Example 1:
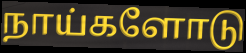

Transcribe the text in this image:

நாய்களோடு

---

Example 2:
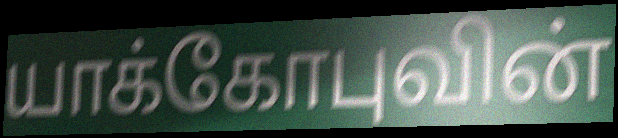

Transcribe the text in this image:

யாக்கோபுவின்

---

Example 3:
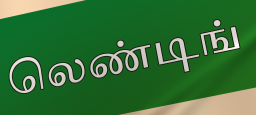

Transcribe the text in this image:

லெண்டிங்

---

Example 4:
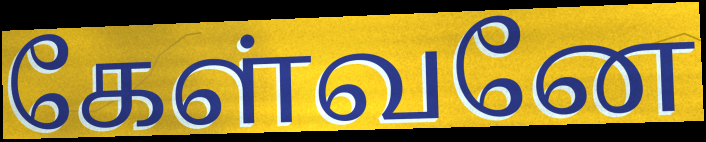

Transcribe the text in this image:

கேள்வனே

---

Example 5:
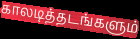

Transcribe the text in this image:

காலடித்தடங்களும்